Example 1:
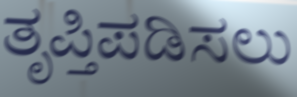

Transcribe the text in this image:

ತೃಪ್ತಿಪಡಿಸಲು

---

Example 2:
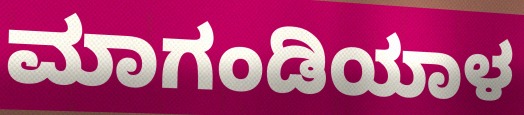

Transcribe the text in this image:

ಮಾಗಂಡಿಯಾಳ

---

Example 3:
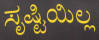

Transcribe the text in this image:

ಸೃಷ್ಟಿಯಿಲ್ಲ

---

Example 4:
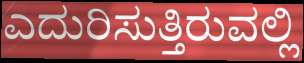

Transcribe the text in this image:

ಎದುರಿಸುತ್ತಿರುವಲ್ಲಿ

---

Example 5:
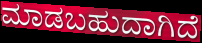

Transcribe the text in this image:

ಮಾಡಬಹುದಾಗಿದೆ